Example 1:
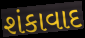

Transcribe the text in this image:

શંકાવાદ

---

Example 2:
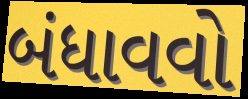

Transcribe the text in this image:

બંધાવવો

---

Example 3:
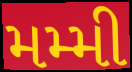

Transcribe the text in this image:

મમ્મી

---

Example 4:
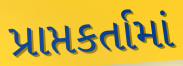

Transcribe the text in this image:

પ્રાપ્તકર્તામાં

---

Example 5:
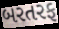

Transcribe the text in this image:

બરતરફ